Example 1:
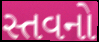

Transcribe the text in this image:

સ્તવનો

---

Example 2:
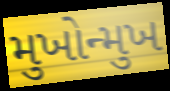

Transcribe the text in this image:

મુખોન્મુખ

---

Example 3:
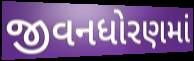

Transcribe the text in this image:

જીવનધોરણમાં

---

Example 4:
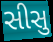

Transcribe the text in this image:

સીસુ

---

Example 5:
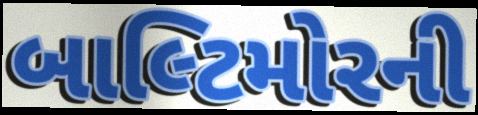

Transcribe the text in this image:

બાલ્ટિમોરની